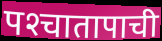
पश्चातापाची